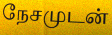
நேசமுடன்